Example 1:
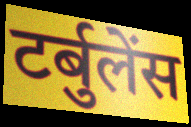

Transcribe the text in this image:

टर्बुलेंस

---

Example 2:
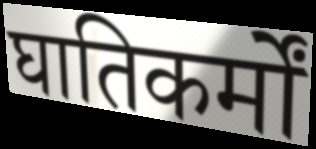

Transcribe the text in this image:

घातिकर्मों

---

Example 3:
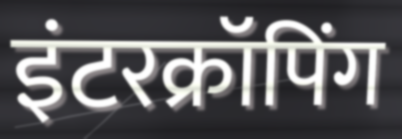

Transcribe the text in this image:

इंटरक्रॉपिंग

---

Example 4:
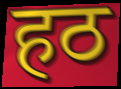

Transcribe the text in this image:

हठ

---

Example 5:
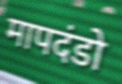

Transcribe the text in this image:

मापदंडो